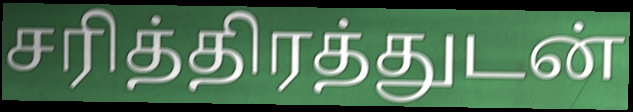
சரித்திரத்துடன்